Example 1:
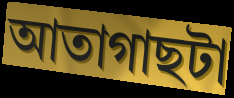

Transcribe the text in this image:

আতাগাছটা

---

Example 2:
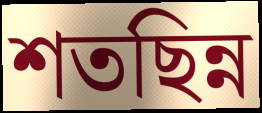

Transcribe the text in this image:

শতছিন্ন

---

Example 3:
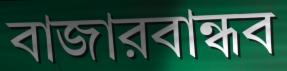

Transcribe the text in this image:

বাজারবান্ধব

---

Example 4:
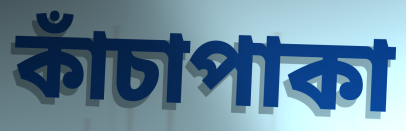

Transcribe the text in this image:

কাঁচাপাকা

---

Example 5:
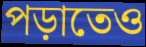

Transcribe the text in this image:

পড়াতেও